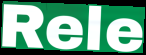
Rele